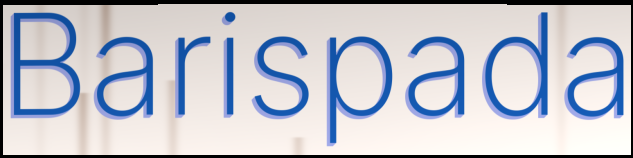
Barispada